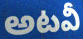
అటవీ